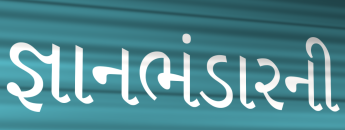
જ્ઞાનભંડારની